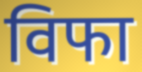
विफा